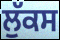
ਲੁੱਕਸ